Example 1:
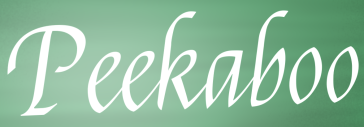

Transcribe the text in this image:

Peekaboo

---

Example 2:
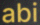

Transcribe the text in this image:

abi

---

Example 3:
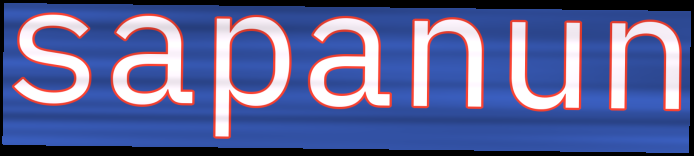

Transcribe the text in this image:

sapanun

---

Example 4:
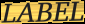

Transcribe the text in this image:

LABEL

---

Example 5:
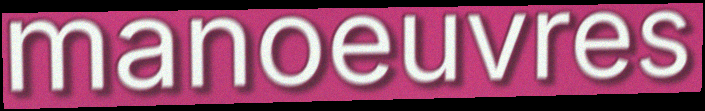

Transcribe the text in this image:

manoeuvres